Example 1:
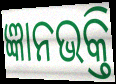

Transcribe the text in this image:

ଜ୍ଞାନଭକ୍ତି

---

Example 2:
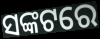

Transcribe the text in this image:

ସଙ୍କଟରେ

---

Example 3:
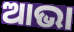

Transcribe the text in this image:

ଆଭା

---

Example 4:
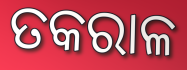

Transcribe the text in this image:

ତକରାଳ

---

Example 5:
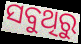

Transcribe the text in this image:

ସବୁଥିରୁ